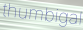
thumbigal